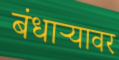
बंधाऱ्यावर